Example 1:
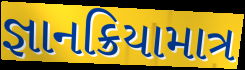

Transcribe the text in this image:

જ્ઞાનક્રિયામાત્ર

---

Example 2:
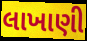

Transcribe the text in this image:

લાખાણી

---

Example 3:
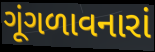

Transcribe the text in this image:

ગૂંગળાવનારાં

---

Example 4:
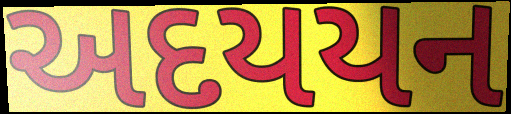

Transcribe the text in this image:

અદયયન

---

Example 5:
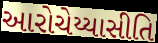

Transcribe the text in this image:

આરોચેય્યાસીતિ